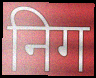
निग